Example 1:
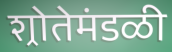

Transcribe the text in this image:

श्रोतेमंडळी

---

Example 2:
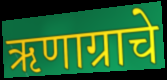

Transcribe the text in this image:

ऋणाग्राचे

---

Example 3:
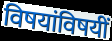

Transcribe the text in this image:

विषयांविषयीं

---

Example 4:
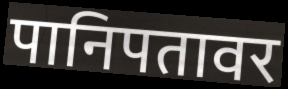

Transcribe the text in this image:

पानिपतावर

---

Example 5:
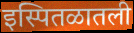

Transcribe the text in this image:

इस्पितळातली